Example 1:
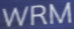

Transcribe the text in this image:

WRM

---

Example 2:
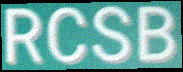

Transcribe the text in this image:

RCSB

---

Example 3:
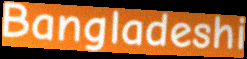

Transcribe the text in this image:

Bangladeshi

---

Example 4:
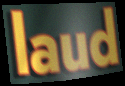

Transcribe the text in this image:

laud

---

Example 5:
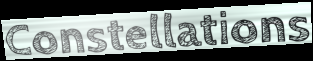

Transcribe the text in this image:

Constellations